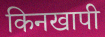
किनखापी